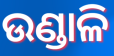
ଉଣ୍ଡାଳି